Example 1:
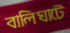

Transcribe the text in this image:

বালিঘাটে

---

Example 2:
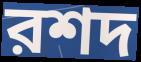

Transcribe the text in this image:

রশদ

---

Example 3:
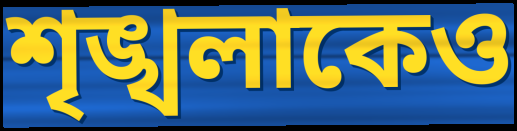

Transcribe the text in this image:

শৃঙ্খলাকেও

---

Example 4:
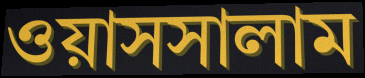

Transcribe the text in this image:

ওয়াসসালাম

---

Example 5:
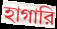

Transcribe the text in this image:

হাগারি